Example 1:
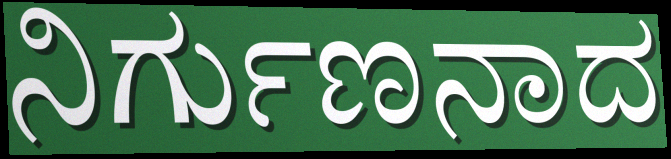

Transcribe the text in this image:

ನಿರ್ಗುಣನಾದ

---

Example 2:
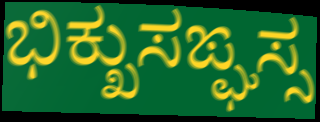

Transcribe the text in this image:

ಭಿಕ್ಖುಸಙ್ಘಸ್ಸ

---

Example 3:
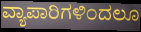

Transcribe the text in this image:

ವ್ಯಾಪಾರಿಗಳಿಂದಲೂ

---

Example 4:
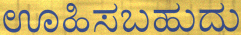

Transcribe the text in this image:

ಊಹಿಸಬಹುದು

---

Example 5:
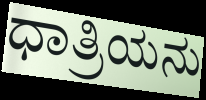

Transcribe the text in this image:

ಧಾತ್ರಿಯನು